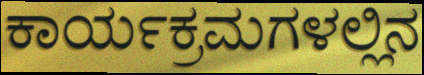
ಕಾರ್ಯಕ್ರಮಗಳಲ್ಲಿನ